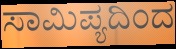
ಸಾಮಿಪ್ಯದಿಂದ